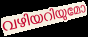
വഴിയറിയുമോ